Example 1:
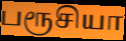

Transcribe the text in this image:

பரூசியா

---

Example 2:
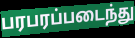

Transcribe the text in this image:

பரபரப்படைந்து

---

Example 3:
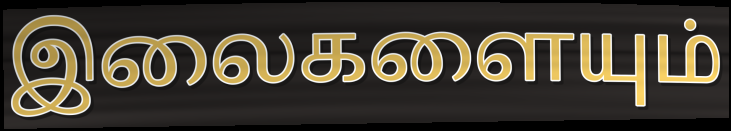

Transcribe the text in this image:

இலைகளையும்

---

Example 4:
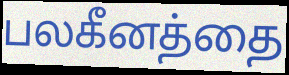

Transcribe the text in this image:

பலகீனத்தை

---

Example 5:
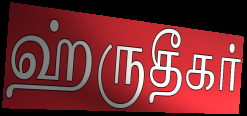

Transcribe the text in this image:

ஹ்ருதீகர்